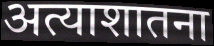
अत्याशातना